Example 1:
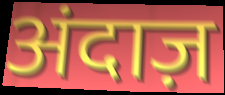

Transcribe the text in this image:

अंदाज़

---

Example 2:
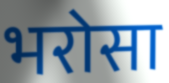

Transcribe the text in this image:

भरोसा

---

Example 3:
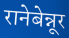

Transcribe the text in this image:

रानेबेन्नूर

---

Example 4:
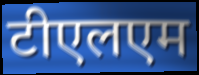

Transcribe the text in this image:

टीएलएम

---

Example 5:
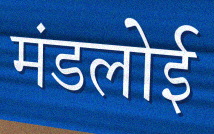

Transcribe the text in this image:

मंडलोई